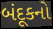
બંદૂકનો